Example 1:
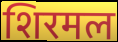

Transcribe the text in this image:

शिरमल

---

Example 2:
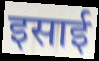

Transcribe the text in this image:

इसाई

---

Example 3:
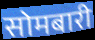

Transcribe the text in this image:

सोमबारी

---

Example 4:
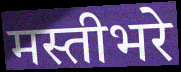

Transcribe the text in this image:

मस्तीभरे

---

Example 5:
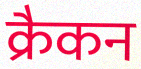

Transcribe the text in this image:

क्रैकन